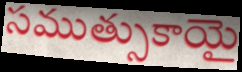
సముత్సుకాయై